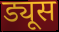
ड्यूस